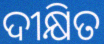
ଦୀକ୍ଷିତ